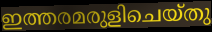
ഇത്തരമരുളിചെയ്തു